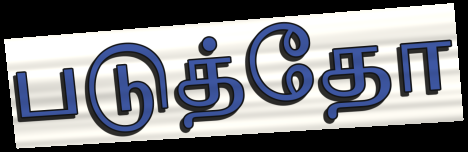
படுத்தோ